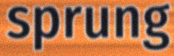
sprung